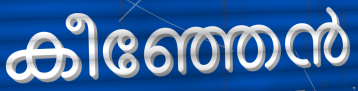
കീഞ്ഞേൻ